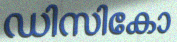
ഡിസികോ